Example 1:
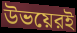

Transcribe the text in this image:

উভয়েরই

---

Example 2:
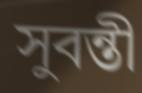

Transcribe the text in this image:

সুবন্তী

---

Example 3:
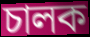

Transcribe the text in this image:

চালক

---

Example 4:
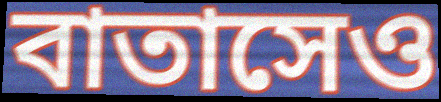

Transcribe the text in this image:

বাতাসেও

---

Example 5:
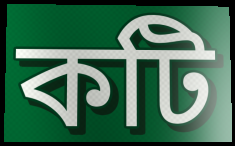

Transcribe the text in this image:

কটি